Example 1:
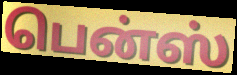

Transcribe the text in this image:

பென்ஸ்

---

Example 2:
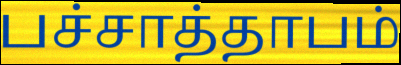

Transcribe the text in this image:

பச்சாத்தாபம்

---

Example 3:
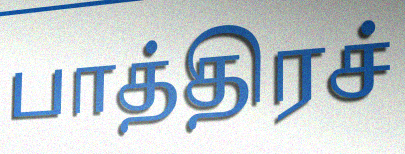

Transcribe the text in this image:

பாத்திரச்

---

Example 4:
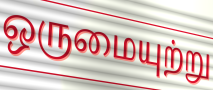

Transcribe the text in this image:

ஒருமையுற்று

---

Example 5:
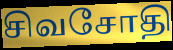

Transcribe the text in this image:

சிவசோதி